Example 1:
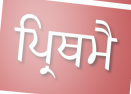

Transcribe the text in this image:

ਪ੍ਰਿਥਮੈ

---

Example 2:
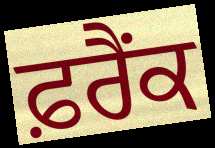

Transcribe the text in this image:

ਫ਼ਰੈਂਕ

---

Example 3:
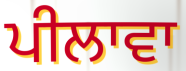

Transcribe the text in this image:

ਪੀਲਾਵਾ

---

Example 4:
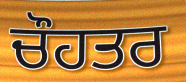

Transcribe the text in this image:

ਚੌਹਤਰ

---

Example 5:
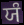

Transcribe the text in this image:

ਯੰ